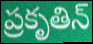
ప్రకృతిన్